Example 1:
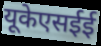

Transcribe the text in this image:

यूकेएसईई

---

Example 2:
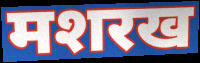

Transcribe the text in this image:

मशरख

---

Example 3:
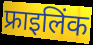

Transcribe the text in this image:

फ्राइलिंक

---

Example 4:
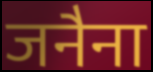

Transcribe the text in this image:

जनैना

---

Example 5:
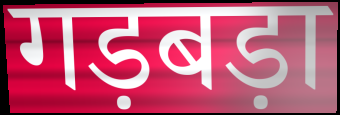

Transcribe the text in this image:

गड़बड़ा